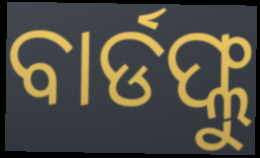
ବାର୍ଡଫ୍ଲୁ